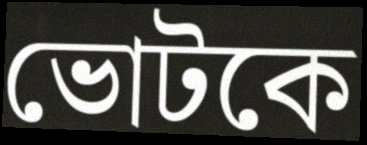
ভোটকে